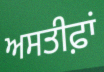
ਅਸਤੀਫ਼ਾਂ